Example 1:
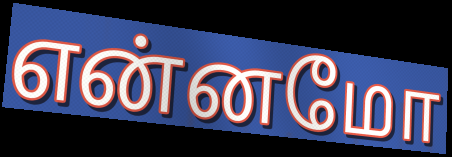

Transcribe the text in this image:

என்னமோ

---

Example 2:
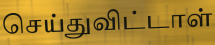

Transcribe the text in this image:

செய்துவிட்டாள்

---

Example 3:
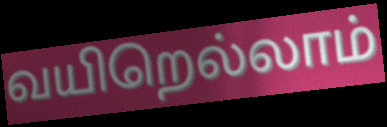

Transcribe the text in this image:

வயிறெல்லாம்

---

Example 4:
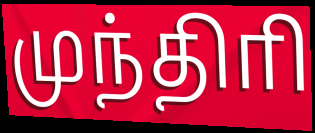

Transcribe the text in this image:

முந்திரி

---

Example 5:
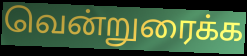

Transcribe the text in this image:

வென்றுரைக்க